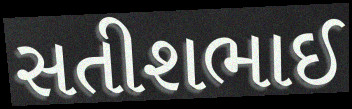
સતીશભાઈ